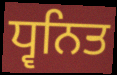
ਧ੍ਵਨਿਤ